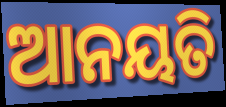
ଆନୟତି